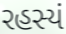
રહસ્યં